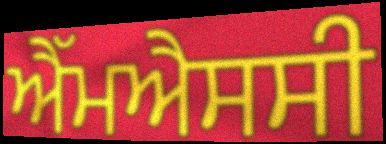
ਐੱਮਐਸਸੀ